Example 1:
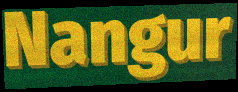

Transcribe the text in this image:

Nangur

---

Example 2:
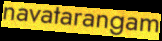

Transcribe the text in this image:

navatarangam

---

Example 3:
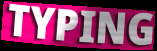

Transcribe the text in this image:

TYPING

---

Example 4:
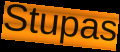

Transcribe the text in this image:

Stupas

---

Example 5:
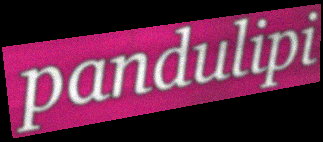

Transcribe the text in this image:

pandulipi